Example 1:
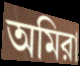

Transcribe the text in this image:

অমিরা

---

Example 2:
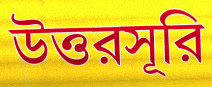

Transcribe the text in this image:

উত্তরসূরি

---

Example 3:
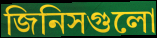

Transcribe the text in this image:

জিনিসগুলো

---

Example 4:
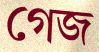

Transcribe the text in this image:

গেজ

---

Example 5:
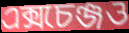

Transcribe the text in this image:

এক্সচেঞ্জও